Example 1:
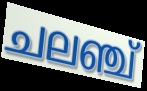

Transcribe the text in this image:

ചലഞ്ച്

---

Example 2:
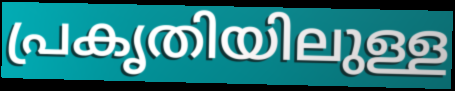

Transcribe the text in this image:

പ്രകൃതിയിലുള്ള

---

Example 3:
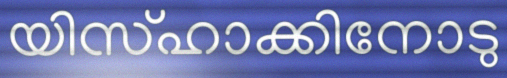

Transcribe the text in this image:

യിസ്ഹാക്കിനോടു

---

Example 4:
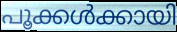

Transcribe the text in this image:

പൂക്കൾക്കായി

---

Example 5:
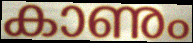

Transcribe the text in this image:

കാണും